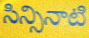
సిన్సినాటి